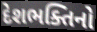
દેશભક્તિનો